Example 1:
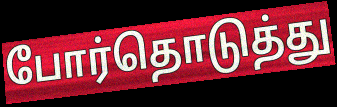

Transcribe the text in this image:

போர்தொடுத்து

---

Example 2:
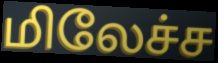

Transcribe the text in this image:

மிலேச்ச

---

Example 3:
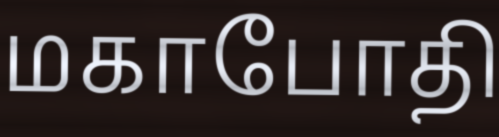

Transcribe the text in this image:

மகாபோதி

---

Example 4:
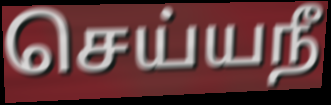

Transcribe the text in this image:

செய்யநீ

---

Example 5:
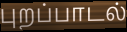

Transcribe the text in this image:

புறப்பாடல்